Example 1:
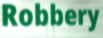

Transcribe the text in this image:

Robbery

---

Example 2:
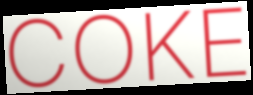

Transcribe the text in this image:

COKE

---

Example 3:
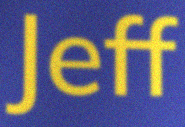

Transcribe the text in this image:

Jeff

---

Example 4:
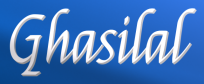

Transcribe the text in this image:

Ghasilal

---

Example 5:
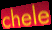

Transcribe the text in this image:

chele